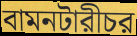
বামনটারীচর